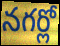
నగర్లో